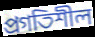
প্রগতিশীল